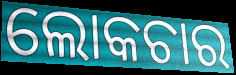
ଲୋକଚାର